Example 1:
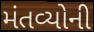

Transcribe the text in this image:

મંતવ્યોની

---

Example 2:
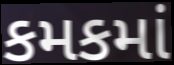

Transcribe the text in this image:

કમકમાં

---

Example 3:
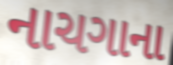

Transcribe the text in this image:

નાચગાના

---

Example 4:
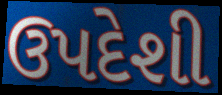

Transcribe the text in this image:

ઉપદેશી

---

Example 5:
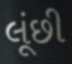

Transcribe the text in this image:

લૂંછી